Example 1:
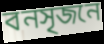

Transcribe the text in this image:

বনসৃজনে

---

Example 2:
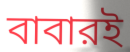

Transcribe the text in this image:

বাবারই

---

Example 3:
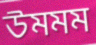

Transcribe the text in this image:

উমমম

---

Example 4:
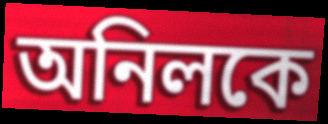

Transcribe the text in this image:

অনিলকে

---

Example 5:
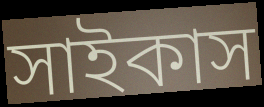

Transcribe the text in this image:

সাইকাস